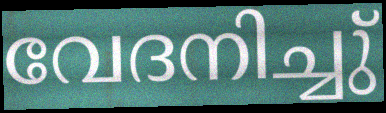
വേദനിച്ചു്